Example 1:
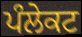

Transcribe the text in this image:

ਪੰਲੇਕਟ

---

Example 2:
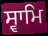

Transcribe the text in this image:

ਸ੍ਵਾਮਿ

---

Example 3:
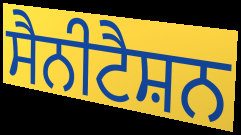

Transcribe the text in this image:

ਸੈਨੀਟੈਸ਼ਨ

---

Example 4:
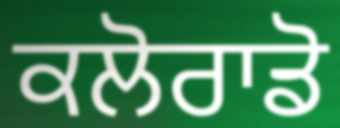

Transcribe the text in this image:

ਕਲੋਰਾਡੋ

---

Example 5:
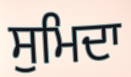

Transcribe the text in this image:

ਸੁਮਿਦਾ